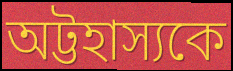
অট্টহাস্যকে